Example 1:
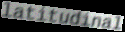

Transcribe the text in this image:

latitudinal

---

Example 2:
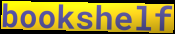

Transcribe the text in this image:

bookshelf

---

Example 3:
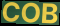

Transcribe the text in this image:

COB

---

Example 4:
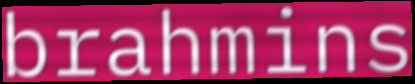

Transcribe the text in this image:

brahmins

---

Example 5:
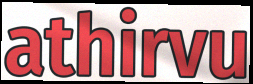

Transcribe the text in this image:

athirvu